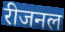
रीजनल